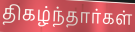
திகழ்ந்தார்கள்